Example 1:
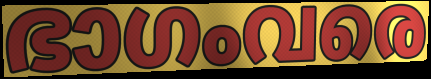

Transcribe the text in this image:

ഭാഗംവരെ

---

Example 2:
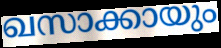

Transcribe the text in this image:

ഖസാക്കായും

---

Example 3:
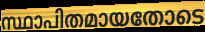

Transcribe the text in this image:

സ്ഥാപിതമായതോടെ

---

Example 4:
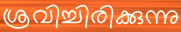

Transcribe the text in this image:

ശ്രവിച്ചിരിക്കുന്നു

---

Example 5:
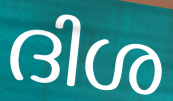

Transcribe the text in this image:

ദിശ